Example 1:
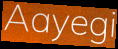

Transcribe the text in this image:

Aayegi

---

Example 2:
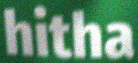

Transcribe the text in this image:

hitha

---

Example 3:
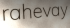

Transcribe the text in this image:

rahevay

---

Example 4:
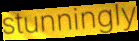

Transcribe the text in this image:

stunningly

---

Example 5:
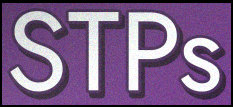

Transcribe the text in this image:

STPs